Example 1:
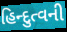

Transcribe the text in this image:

હિન્દુત્વની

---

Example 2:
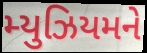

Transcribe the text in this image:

મ્યુઝિયમને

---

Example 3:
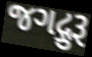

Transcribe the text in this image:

જગદ્ગુરૂ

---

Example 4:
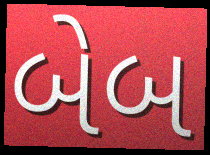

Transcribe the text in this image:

બેબ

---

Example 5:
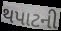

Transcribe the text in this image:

થપાટની